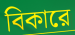
বিকারে